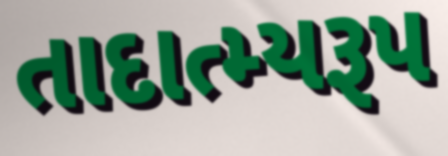
તાદાત્મ્યરૂપ